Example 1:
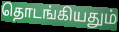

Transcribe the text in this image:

தொடங்கியதும்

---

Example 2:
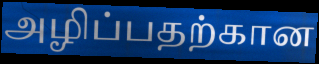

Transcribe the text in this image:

அழிப்பதற்கான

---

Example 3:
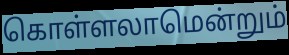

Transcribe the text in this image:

கொள்ளலாமென்றும்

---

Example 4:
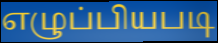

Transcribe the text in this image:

எழுப்பியபடி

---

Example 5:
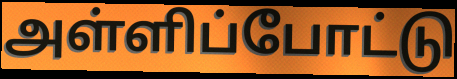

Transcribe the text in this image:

அள்ளிப்போட்டு